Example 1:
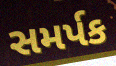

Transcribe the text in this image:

સમર્પક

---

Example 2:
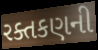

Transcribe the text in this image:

રક્તકણની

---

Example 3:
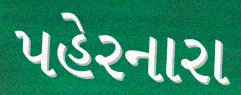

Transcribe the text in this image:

પહેરનારા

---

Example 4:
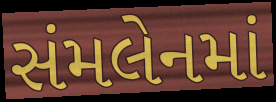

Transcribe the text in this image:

સંમલેનમાં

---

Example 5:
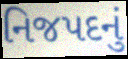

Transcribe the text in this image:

નિજપદનું